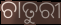
ଚାତୁରୀ